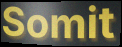
Somit